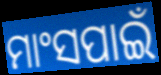
ମାଂସପାଇଁ